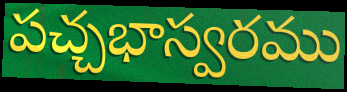
పచ్చభాస్వరము